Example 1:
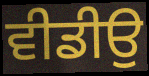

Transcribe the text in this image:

ਵੀਡੀਉ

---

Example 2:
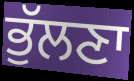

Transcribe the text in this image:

ਭੁੱਲਣਾ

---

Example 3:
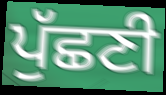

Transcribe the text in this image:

ਪੁੱਛਣੀ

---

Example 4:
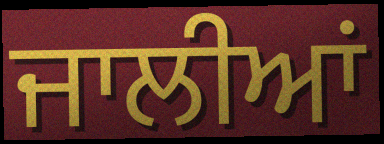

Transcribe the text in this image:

ਜਾਲੀਆਂ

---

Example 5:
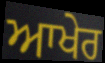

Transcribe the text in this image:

ਆਖੇਰ